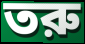
তরু